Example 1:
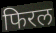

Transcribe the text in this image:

फिरल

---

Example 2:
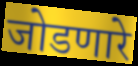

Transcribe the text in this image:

जोडणारे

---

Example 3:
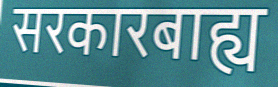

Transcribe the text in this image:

सरकारबाह्य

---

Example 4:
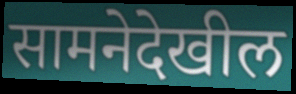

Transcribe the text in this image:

सामनेदेखील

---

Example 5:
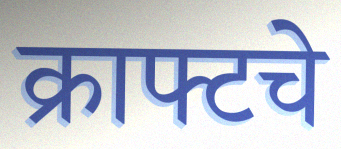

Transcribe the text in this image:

क्राफ्टचे